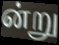
ன்று